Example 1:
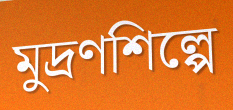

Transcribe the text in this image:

মুদ্রণশিল্পে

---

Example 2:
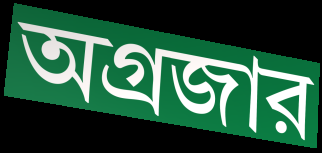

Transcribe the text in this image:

অগ্রজার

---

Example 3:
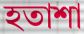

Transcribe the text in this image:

হতাশা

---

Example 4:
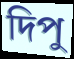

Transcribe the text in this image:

দিপু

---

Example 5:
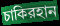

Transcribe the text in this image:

চাকিরহান